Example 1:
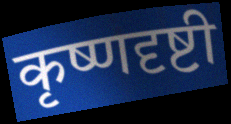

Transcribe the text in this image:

कृष्णदृष्टी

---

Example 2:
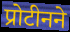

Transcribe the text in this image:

प्रोटीनने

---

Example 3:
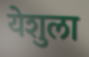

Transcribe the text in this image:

येशुला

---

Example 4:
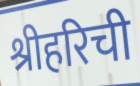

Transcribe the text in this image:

श्रीहरिची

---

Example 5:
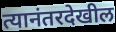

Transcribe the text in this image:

त्यानंतरदेखील